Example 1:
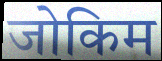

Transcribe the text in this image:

जोकिम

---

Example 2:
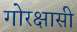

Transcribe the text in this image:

गोरक्षासी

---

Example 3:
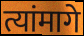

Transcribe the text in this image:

त्यांमागे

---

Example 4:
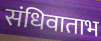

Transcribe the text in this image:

संधिवाताभ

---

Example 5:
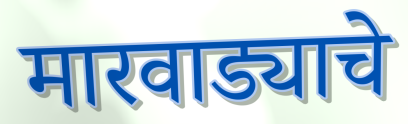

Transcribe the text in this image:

मारवाड्याचे